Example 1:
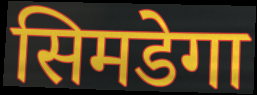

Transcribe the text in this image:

सिमडेगा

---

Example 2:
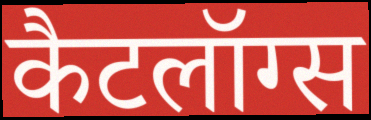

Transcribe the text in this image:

कैटलॉग्स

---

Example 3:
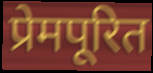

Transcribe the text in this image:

प्रेमपूरित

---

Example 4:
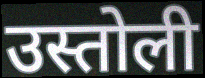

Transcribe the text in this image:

उस्तोली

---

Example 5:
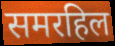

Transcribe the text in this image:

समरहिल